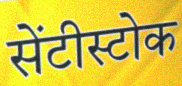
सेंटीस्टोक